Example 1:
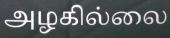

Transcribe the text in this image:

அழகில்லை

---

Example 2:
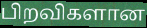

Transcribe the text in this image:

பிறவிகளான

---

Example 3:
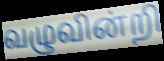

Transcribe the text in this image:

வழுவின்றி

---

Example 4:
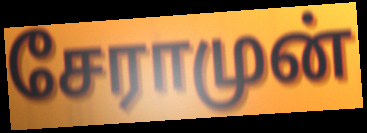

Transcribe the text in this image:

சேராமுன்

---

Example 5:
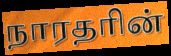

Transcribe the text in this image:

நாரதரின்